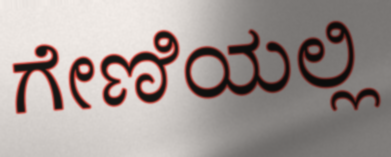
ಗೇಣಿಯಲ್ಲಿ